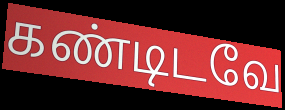
கண்டிடவே